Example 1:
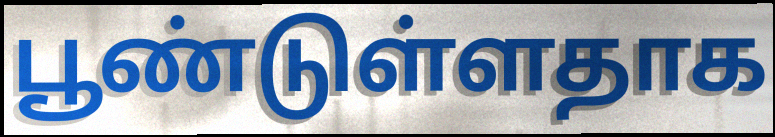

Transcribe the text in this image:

பூண்டுள்ளதாக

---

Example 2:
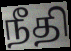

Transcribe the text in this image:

நீதி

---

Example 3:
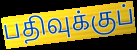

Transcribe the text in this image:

பதிவுக்குப்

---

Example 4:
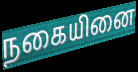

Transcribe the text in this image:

நகையினை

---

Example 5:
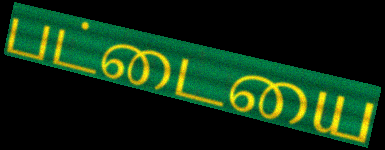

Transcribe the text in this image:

பட்டையை